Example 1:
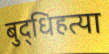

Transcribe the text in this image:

बुद्धिहत्या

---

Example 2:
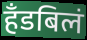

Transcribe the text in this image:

हँडबिलं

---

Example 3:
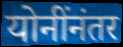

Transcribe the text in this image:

योनींनंतर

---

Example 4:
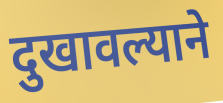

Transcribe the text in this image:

दुखावल्याने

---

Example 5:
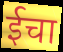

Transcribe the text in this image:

ईचा